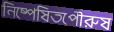
নিষ্পেষিতপৌরুষ